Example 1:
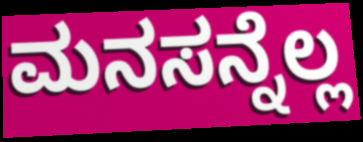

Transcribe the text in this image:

ಮನಸನ್ನೆಲ್ಲ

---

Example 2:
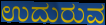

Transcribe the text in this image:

ಉದುರುವ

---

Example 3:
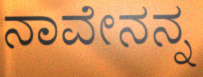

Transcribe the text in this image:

ನಾವೇನನ್ನ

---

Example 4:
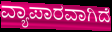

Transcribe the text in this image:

ವ್ಯಾಪಾರವಾಗಿದೆ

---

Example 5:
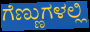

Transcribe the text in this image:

ಗೆಣ್ಣುಗಳಲ್ಲಿ